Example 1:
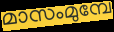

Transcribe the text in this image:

മാസംമുമ്പേ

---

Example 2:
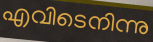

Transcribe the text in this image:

എവിടെനിന്നു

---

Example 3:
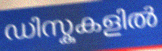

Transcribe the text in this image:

ഡിസ്കുകളിൽ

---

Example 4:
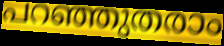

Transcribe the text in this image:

പറഞ്ഞുതരാം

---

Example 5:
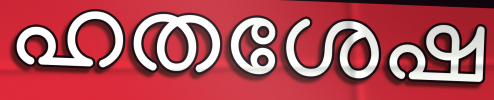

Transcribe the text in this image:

ഹതശേഷ